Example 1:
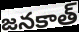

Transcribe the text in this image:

జనకాత్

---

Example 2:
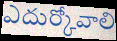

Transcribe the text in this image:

ఎదుర్కోవాలి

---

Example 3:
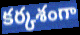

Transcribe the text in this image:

కర్కశంగా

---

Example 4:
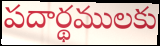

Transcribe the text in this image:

పదార్థములకు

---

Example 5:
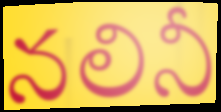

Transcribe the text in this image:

నలినీ